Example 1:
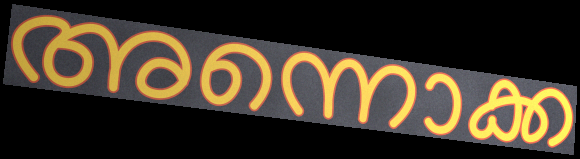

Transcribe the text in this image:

അന്നൊക്ക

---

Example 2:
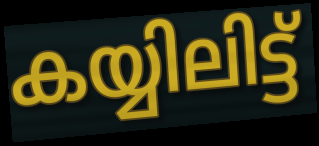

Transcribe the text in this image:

കയ്യിലിട്ട്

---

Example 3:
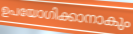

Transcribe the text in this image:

ഉപയോഗിക്കാനാകും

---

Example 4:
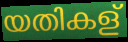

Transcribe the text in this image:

യതികള്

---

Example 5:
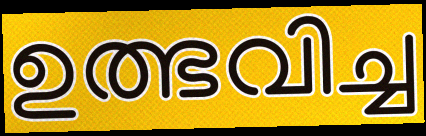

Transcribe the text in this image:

ഉത്ഭവിച്ച